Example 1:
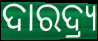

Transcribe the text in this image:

ଦାରଦ୍ର୍ୟ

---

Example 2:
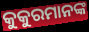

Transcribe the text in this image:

କୁକୁରମାନଙ୍କ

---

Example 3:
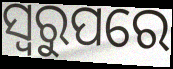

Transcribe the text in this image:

ସ୍ୱରୁପରେ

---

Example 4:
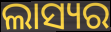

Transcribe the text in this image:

ଲାସ୍ୟର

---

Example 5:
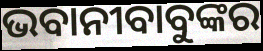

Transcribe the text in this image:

ଭବାନୀବାବୁଙ୍କର